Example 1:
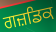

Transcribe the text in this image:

ਗਜ਼ਡਿਕ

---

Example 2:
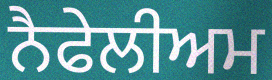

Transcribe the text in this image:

ਨੈਫੇਲੀਅਮ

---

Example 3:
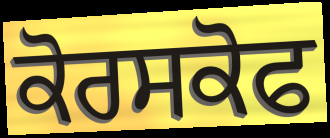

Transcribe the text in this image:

ਕੋਰਸਕੋਫ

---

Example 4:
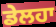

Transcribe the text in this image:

ਡੇਲਹਾ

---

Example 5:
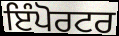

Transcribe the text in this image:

ਇੰਪੋਰਟਰ